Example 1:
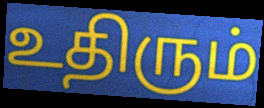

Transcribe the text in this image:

உதிரும்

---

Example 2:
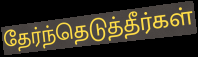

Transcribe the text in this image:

தேர்ந்தெடுத்தீர்கள்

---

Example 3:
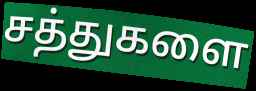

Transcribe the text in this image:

சத்துகளை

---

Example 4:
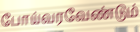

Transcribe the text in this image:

போய்வரவேண்டும்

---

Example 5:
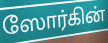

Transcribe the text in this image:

ஸோர்கின்